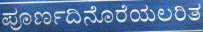
ಪೂರ್ಣದಿನೊರೆಯಲರಿತ